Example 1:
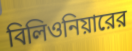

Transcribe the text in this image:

বিলিওনিয়ারের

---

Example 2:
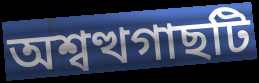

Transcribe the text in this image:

অশ্বত্থগাছটি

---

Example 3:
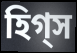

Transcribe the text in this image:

হিগ্স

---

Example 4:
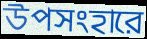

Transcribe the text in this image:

উপসংহারে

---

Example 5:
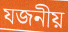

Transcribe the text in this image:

যজনীয়